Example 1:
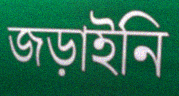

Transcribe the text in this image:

জড়াইনি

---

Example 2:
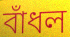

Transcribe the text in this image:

বাঁধল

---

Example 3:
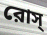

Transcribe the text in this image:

রোস্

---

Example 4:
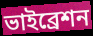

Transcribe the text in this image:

ভাইব্রেশন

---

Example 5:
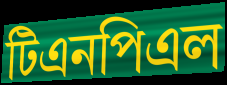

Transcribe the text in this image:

টিএনপিএল